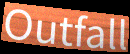
Outfall